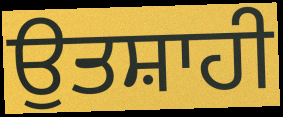
ਉਤਸ਼ਾਹੀ